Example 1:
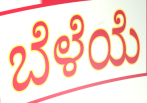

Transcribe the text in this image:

ಬೆಳೆಯೆ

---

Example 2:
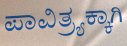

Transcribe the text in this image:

ಪಾವಿತ್ರ್ಯಕ್ಕಾಗಿ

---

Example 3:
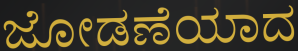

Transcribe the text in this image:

ಜೋಡಣೆಯಾದ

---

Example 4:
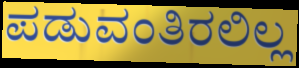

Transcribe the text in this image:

ಪಡುವಂತಿರಲಿಲ್ಲ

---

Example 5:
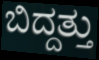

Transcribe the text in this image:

ಬಿದ್ದತ್ತು